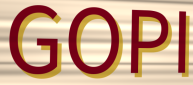
GOPI